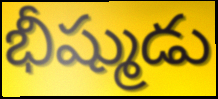
భీష్ముడు